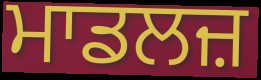
ਮਾਡਲਜ਼